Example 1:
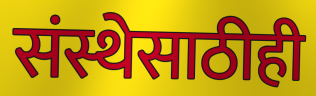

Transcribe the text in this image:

संस्थेसाठीही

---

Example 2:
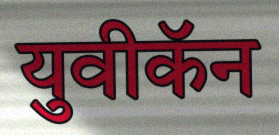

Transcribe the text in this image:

युवीकॅन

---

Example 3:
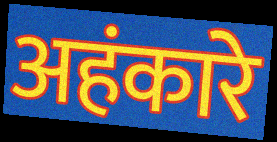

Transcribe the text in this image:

अहंकारे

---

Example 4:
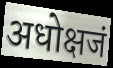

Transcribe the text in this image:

अधोक्षजं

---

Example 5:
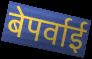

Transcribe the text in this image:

बेपर्वाई